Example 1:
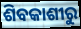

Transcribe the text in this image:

ଶିବକାଶୀରୁ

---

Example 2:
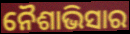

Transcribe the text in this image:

ନୈଶାଭିସାର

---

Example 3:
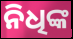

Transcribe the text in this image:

ନିଧିଙ୍କ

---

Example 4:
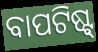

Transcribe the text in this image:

ବାପଟିଷ୍ଟ୍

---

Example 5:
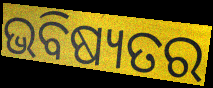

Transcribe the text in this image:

ଭବିଷ୍ୟତର